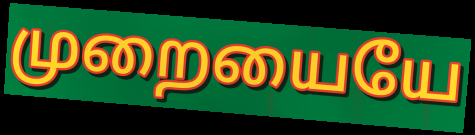
முறையையே